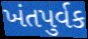
ખંતપુર્વક